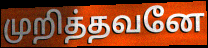
முறித்தவனே